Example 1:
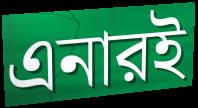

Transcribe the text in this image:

এনারই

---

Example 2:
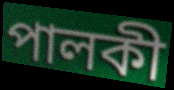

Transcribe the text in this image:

পালকী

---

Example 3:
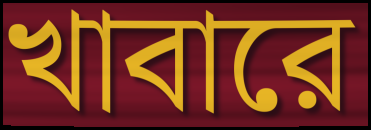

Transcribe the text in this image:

খাবারে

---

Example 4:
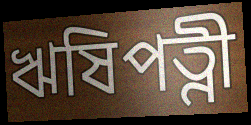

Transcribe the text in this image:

ঋষিপত্নী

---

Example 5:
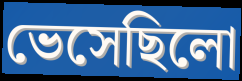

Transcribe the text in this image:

ভেসেছিলো